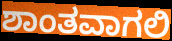
ಶಾಂತವಾಗಲಿ